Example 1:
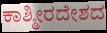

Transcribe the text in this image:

ಕಾಶ್ಮೀರದೇಶದ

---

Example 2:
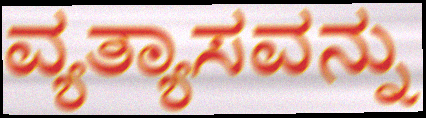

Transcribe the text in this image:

ವ್ಯತ್ಯಾಸವನ್ನು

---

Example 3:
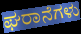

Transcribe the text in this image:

ಘರಾನೆಗಳು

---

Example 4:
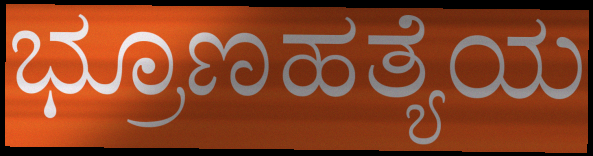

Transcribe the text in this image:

ಭ್ರೂಣಹತ್ಯೆಯ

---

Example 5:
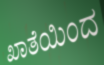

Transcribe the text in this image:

ಖಾತೆಯಿಂದ